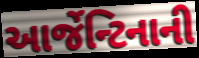
આર્જેન્ટિનાની